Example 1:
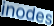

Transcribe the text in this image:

inodes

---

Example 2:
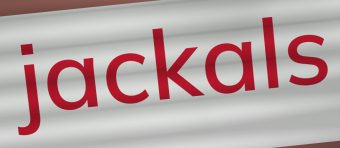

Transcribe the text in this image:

jackals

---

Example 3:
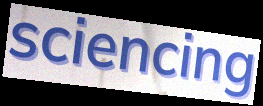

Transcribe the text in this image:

sciencing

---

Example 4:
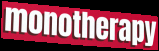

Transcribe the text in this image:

monotherapy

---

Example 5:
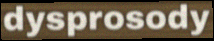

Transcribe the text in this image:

dysprosody